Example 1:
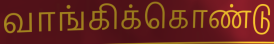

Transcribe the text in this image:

வாங்கிக்கொண்டு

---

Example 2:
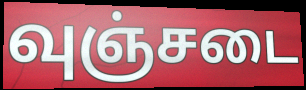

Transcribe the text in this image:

வுஞ்சடை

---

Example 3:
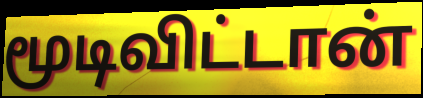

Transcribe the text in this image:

மூடிவிட்டான்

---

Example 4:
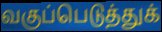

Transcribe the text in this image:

வகுப்பெடுத்துக்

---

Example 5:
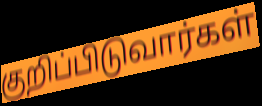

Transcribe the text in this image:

குறிப்பிடுவார்கள்